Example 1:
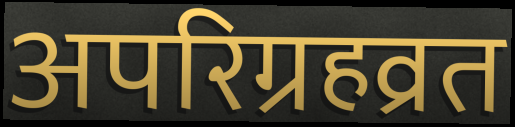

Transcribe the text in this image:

अपरिग्रहव्रत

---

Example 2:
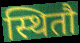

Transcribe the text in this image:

स्थितौ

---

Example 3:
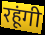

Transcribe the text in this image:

रहूंगी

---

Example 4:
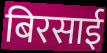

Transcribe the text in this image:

बिरसाई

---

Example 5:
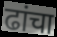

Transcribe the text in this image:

ढांचा